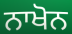
ਨਾਖੋਨ